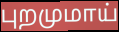
புறமுமாய்